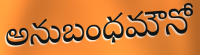
అనుబంధమౌనో